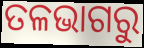
ତଳଭାଗରୁ